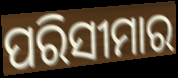
ପରିସୀମାର